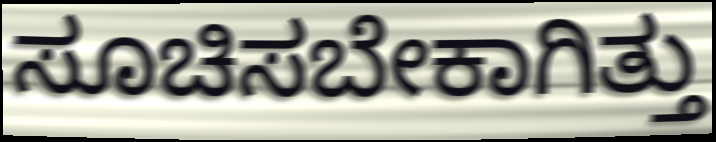
ಸೂಚಿಸಬೇಕಾಗಿತ್ತು